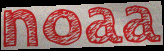
noaa